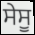
ਸੇਸੂ